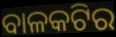
ବାଳକଟିର